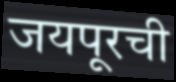
जयपूरची